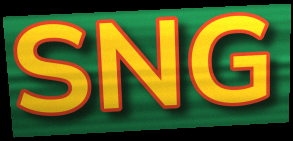
SNG